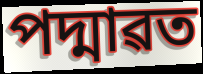
পদ্মাৱত